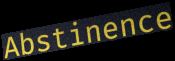
Abstinence